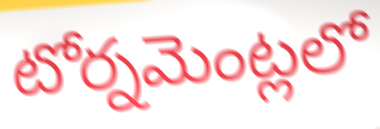
టోర్నమెంట్లలో